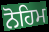
ਨੋਹਿਮ